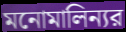
মনোমালিন্যর